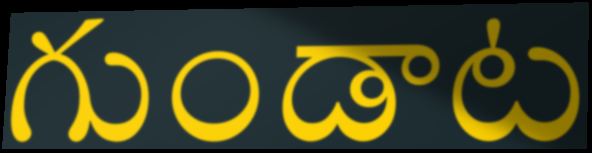
గుండాట